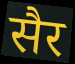
सैर